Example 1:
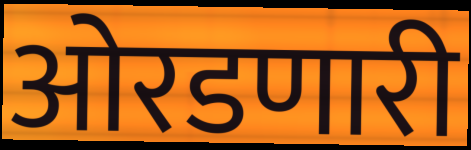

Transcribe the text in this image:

ओरडणारी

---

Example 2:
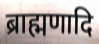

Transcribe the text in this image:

ब्राह्मणादि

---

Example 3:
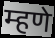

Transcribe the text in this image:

म्हणे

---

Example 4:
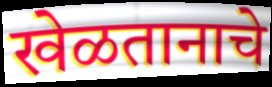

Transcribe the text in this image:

खेळतानाचे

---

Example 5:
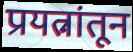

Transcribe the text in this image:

प्रयत्नांतून